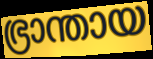
ഭ്രാന്തായ